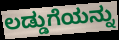
ಲಡ್ಡುಗೆಯನ್ನು